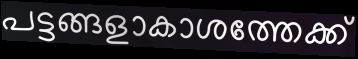
പട്ടങ്ങളാകാശത്തേക്ക്